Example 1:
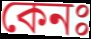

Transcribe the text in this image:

কেনঃ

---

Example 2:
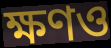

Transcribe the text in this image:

ক্ষণও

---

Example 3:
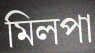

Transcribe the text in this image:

মিলপা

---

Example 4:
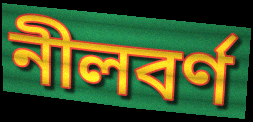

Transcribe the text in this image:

নীলবর্ণ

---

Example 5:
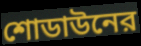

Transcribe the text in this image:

শোডাউনের